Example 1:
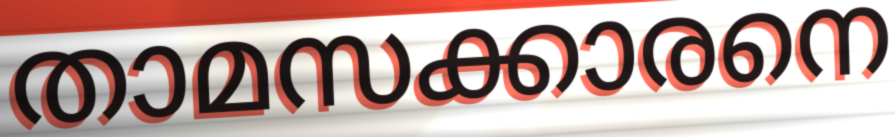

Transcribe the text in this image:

താമസക്കാരനെ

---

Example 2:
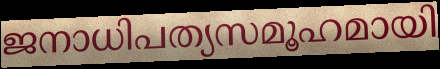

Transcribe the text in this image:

ജനാധിപത്യസമൂഹമായി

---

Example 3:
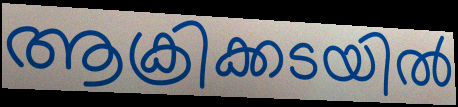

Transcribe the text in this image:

ആക്രിക്കടയിൽ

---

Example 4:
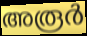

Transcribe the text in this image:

അരൂർ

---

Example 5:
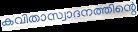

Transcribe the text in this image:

കവിതാസ്വാദനത്തിന്റെ